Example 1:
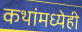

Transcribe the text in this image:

कथांमध्येही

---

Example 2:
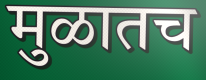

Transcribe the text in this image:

मुळातच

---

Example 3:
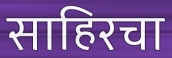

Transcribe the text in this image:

साहिरचा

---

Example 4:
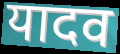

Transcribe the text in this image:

यादव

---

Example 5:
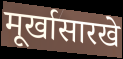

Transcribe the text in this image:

मूर्खासारखे